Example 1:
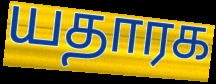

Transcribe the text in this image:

யதாரக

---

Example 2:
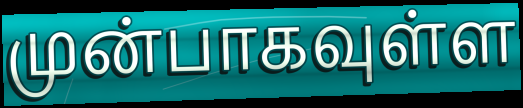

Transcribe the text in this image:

முன்பாகவுள்ள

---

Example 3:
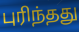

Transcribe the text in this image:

புரிந்தது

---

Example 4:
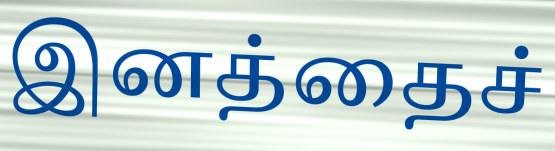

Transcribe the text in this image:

இனத்தைச்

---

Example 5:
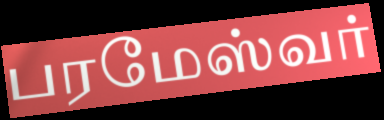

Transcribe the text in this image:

பரமேஸ்வர்